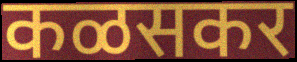
कळसकर